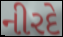
નીરદે